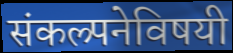
संकल्पनेविषयी